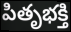
పితృభక్తి